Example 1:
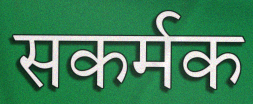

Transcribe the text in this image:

सकर्मक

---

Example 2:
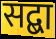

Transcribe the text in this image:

सद्बा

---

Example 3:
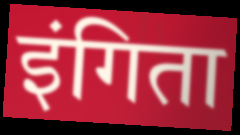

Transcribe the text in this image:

इंगिता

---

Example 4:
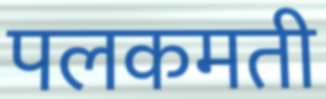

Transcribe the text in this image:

पलकमती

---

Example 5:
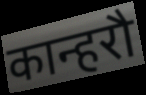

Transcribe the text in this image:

कान्हरौ